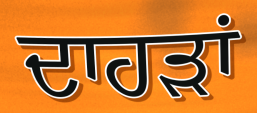
ਦਾਹੜਾਂ